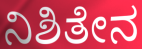
ನಿಶಿತೇನ